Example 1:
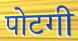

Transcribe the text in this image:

पोटगी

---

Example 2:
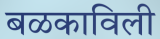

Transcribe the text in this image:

बळकाविली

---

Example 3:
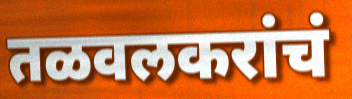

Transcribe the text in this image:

तळवलकरांचं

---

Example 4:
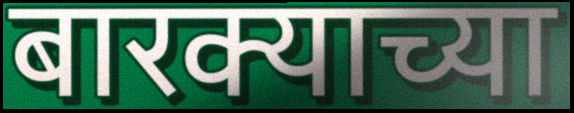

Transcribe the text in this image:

बारक्याच्या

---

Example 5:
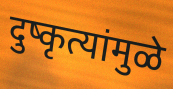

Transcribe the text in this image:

दुष्कृत्यांमुळे